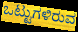
ಒಟ್ಟುಗಳಿರುವ